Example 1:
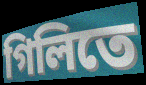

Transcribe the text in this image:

গিলিতে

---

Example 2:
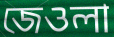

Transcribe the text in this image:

জেওলা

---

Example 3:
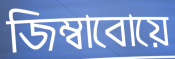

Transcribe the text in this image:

জিম্বাবোয়ে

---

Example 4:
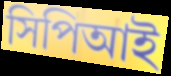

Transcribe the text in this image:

সিপিআই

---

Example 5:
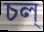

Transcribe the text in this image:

চল্